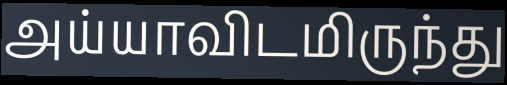
அய்யாவிடமிருந்து